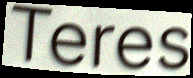
Teres